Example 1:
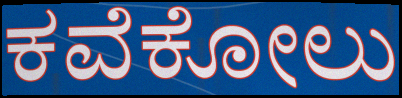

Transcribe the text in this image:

ಕವೆಕೋಲು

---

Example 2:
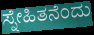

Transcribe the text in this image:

ಸ್ನೇಹಿತನೆಂದು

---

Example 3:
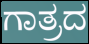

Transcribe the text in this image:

ಗಾತ್ರದ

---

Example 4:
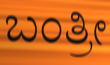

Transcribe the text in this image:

ಬಂತ್ರೀ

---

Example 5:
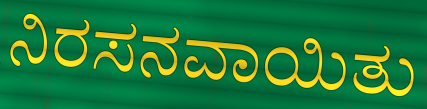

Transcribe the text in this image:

ನಿರಸನವಾಯಿತು